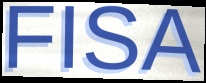
FISA